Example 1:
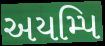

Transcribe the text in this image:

અયમ્પિ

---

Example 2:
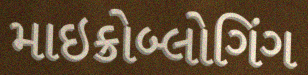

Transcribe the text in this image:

માઇક્રોબ્લોગિંગ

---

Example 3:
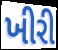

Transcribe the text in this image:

ખીરી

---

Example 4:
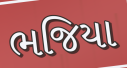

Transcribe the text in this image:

ભજિયા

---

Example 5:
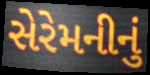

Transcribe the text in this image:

સેરેમનીનું